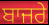
ਬਾਜਰੇ